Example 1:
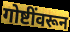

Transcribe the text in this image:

गोष्टींवरून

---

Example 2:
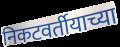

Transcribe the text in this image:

निकटवर्तीयाच्या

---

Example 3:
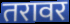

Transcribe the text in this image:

तरावर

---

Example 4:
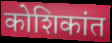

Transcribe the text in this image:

कोशिकांत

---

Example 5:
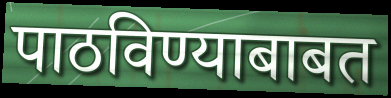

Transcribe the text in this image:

पाठविण्याबाबत